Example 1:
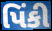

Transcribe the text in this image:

પિંકી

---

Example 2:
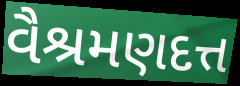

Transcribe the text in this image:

વૈશ્રમણદત્ત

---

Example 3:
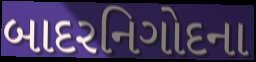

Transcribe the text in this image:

બાદરનિગોદના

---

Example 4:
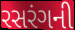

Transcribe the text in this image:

રસરંગની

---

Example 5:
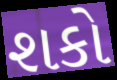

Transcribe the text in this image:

શકો